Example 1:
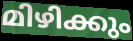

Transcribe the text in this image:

മിഴിക്കും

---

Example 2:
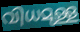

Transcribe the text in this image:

വിധമുള്ള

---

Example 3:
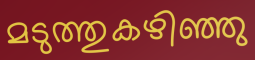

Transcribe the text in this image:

മടുത്തുകഴിഞ്ഞു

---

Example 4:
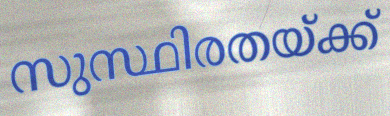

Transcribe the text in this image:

സുസ്ഥിരതയ്ക്ക്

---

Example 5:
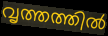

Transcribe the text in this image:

വൃത്തത്തിൽ